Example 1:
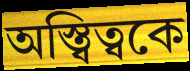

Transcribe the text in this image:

অস্ত্বিত্বকে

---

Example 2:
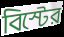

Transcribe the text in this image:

বিস্টের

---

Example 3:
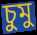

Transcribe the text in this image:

চুমু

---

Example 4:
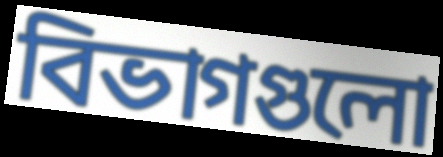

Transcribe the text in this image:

বিভাগগুলো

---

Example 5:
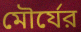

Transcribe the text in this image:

মৌর্যের